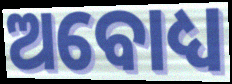
ଅବୋଧ୍ୟ